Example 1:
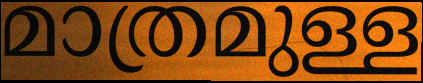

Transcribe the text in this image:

മാത്രമുള്ള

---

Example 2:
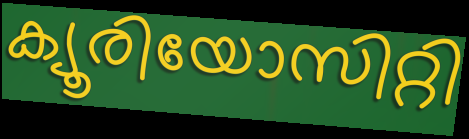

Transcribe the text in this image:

ക്യൂരിയോസിറ്റി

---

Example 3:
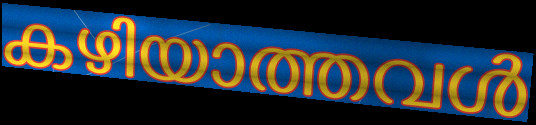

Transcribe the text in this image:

കഴിയാത്തവൾ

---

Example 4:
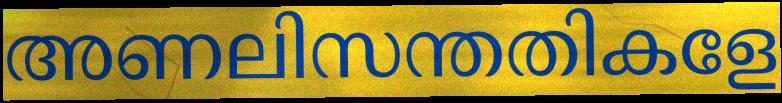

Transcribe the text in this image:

അണലിസന്തതികളേ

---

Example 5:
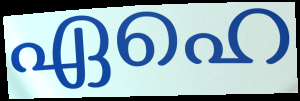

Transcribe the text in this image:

ഏഹെ